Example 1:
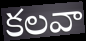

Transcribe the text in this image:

కలవా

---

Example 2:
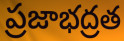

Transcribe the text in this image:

ప్రజాభద్రత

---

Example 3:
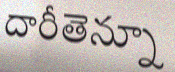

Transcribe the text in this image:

దారీతెన్నూ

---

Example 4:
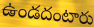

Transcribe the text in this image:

ఉండదంటారు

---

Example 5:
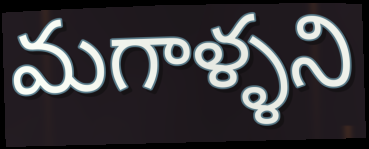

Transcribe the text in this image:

మగాళ్ళని